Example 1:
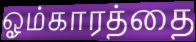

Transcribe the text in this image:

ஓம்காரத்தை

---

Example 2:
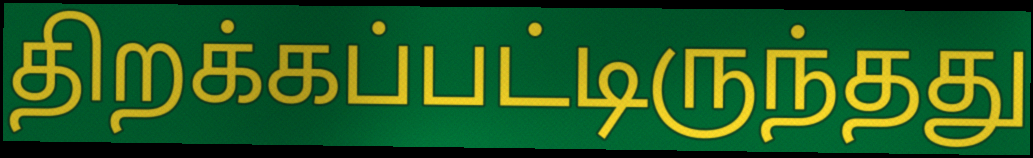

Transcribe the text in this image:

திறக்கப்பட்டிருந்தது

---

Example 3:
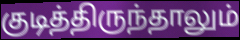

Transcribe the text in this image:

குடித்திருந்தாலும்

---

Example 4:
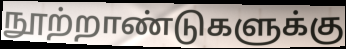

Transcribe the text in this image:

நூற்றாண்டுகளுக்கு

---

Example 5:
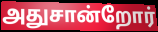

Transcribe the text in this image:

அதுசான்றோர்